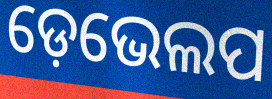
ଡ଼େଭେଲପ